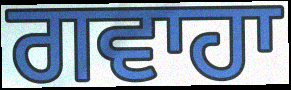
ਗਵਾਹਾ